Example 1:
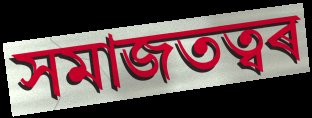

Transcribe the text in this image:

সমাজতত্বৰ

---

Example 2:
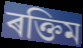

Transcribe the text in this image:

ৰক্তিম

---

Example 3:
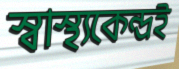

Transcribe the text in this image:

স্বাস্থ্যকেন্দ্ৰই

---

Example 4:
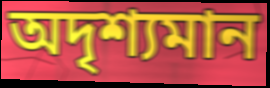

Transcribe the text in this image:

অদৃশ্যমান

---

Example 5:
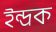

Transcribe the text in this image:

ইন্দ্ৰক